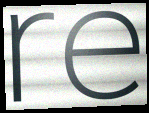
re